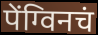
पेंग्विनचं